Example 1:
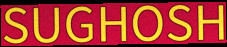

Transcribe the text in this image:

SUGHOSH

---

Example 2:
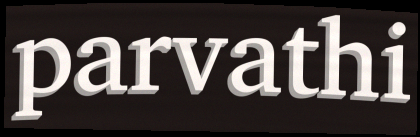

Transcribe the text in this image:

parvathi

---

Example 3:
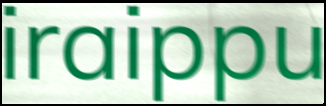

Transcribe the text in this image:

iraippu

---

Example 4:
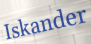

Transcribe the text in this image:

Iskander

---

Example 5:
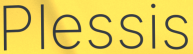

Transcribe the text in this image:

Plessis